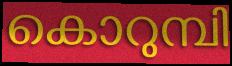
കൊറുമ്പി